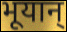
भूयान्